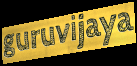
guruvijaya